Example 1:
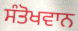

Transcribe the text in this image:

ਸੰਤੋਖਵਾਨ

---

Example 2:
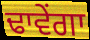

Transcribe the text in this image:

ਢਾਵੇਂਗਾ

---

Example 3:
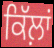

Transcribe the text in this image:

ਕਿੱਲ਼ਾਂ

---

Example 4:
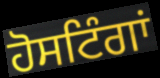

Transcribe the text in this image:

ਹੋਸਟਿੰਗਾਂ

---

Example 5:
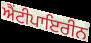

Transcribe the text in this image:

ਐਂਟੀਪਾਇਰੀਨ